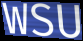
WSU